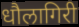
धौलागिरी